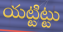
యట్టిట్టు